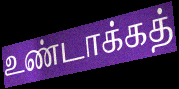
உண்டாக்கத்